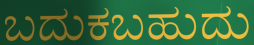
ಬದುಕಬಹುದು